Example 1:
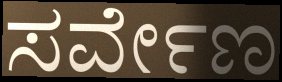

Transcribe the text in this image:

ಸರ್ವೇಣ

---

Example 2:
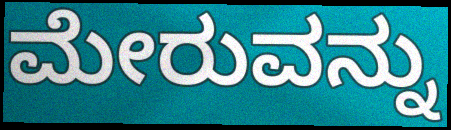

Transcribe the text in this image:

ಮೇರುವನ್ನು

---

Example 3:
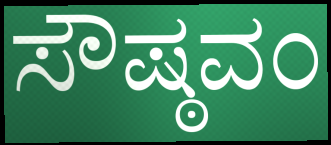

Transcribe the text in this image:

ಸೌಷ್ಠವಂ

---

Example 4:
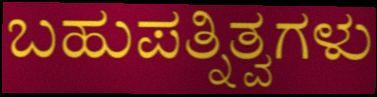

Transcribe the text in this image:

ಬಹುಪತ್ನಿತ್ವಗಳು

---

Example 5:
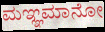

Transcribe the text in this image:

ಮಞ್ಞಮಾನೋ